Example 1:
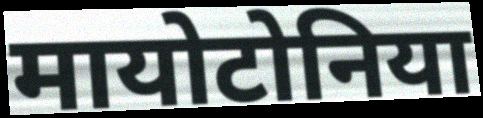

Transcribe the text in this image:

मायोटोनिया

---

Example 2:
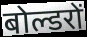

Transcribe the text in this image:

बोल्डरों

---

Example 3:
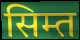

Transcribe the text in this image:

सिम्त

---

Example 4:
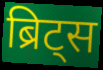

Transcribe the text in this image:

ब्रिट्स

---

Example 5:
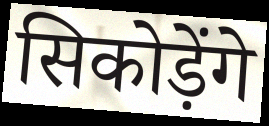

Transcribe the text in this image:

सिकोड़ेंगे